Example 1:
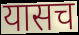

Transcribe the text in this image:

यासच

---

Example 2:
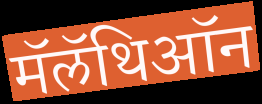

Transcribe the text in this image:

मॅलॅथिऑन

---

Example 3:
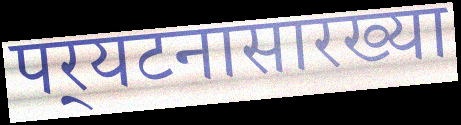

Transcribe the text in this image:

पर्यटनासारख्या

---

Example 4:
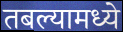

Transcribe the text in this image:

तबल्यामध्ये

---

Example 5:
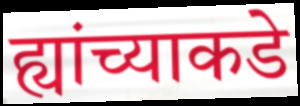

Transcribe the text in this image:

ह्यांच्याकडे